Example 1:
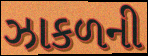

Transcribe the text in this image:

ઝાકળની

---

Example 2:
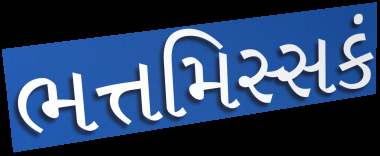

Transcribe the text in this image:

ભત્તમિસ્સકં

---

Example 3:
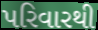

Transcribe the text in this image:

પરિવારથી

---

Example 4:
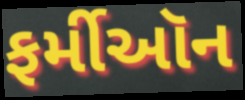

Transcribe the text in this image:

ફર્મીઑન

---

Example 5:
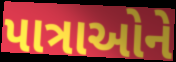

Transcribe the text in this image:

પાત્રાઓને